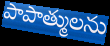
పాపాత్ములను